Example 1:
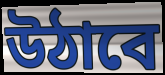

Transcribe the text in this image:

উঠাবে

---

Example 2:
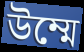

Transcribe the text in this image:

উম্মে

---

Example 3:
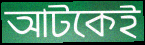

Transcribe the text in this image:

আটকেই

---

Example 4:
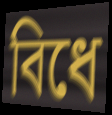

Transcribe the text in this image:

বিধে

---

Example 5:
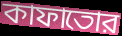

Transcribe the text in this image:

কাফাতোর